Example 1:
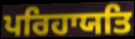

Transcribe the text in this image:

ਪਰਿਹਾਯਤਿ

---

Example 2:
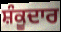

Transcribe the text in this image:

ਸ਼ੰਕੂਦਾਰ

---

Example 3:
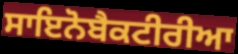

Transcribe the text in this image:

ਸਾਇਨੋਬੈਕਟੀਰੀਆ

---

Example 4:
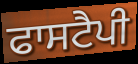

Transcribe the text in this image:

ਫਾਸਟੈਪੀ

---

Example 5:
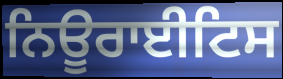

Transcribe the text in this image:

ਨਿਊਰਾਈਟਿਸ